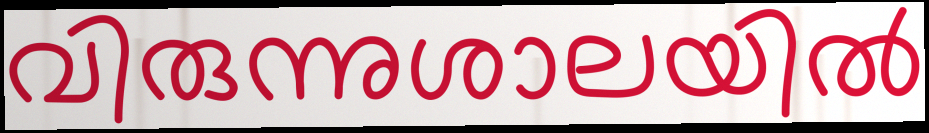
വിരുന്നുശാലയിൽ